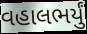
વહાલભર્યું